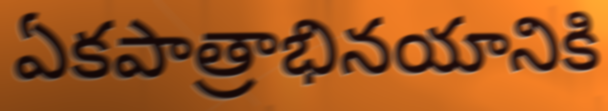
ఏకపాత్రాభినయానికి